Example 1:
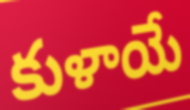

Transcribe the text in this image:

కుళాయే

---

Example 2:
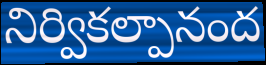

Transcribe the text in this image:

నిర్వికల్పానంద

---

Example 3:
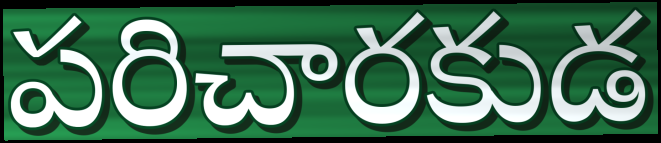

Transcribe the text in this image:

పరిచారకుడ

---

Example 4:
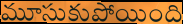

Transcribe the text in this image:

మూసుకుపోయింది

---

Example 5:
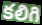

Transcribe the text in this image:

కలిగి